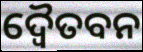
ଦ୍ୱୈତବନ